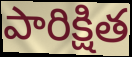
పారిక్షిత